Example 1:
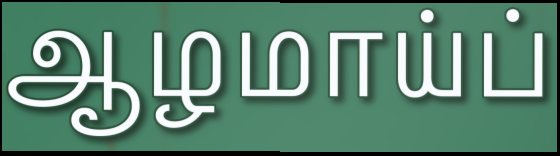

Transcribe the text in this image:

ஆழமாய்ப்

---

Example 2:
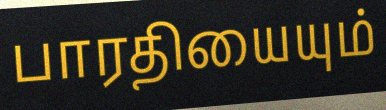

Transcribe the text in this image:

பாரதியையும்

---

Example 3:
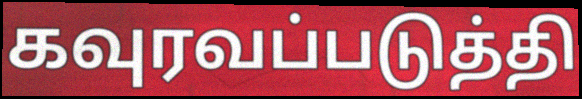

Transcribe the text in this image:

கவுரவப்படுத்தி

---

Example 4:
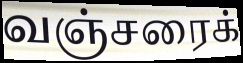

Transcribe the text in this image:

வஞ்சரைக்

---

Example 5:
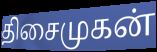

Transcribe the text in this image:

திசைமுகன்